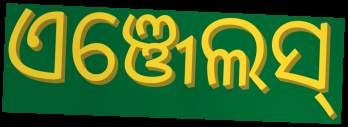
ଏଞ୍ଜେଲସ୍